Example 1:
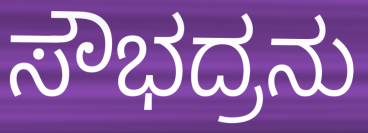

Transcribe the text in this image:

ಸೌಭದ್ರನು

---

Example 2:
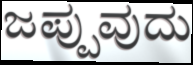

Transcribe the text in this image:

ಜಪ್ಪುವುದು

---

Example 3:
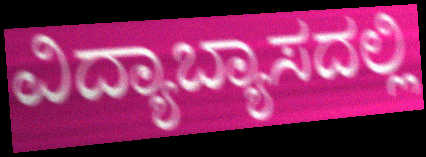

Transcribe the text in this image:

ವಿದ್ಯಾಬ್ಯಾಸದಲ್ಲಿ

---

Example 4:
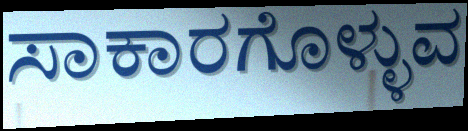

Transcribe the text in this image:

ಸಾಕಾರಗೊಳ್ಳುವ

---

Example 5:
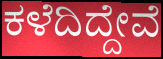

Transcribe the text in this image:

ಕಳೆದಿದ್ದೇವೆ